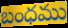
బంధము